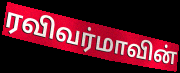
ரவிவர்மாவின்